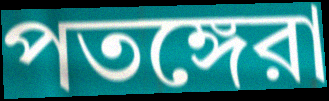
পতঙ্গেরা